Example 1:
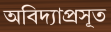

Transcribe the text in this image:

অবিদ্যাপ্রসূত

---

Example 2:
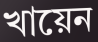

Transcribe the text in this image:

খায়েন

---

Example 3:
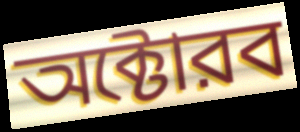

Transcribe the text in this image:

অক্টোরব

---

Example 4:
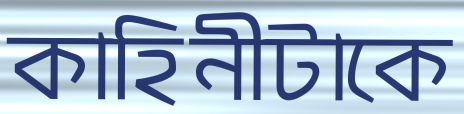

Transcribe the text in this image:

কাহিনীটাকে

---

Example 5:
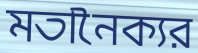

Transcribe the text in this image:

মতানৈক্যর